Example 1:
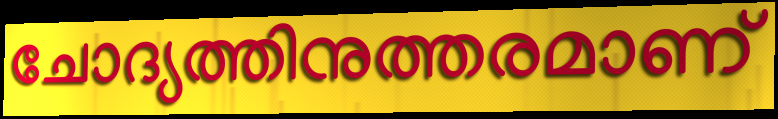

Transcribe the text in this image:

ചോദ്യത്തിനുത്തരമാണ്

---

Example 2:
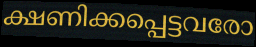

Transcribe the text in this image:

ക്ഷണിക്കപ്പെട്ടവരോ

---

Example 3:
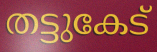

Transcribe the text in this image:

തട്ടുകേട്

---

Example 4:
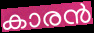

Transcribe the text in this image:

കാരൻ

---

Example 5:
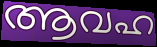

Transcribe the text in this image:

ആവഹ